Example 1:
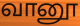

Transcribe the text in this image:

வானூ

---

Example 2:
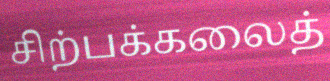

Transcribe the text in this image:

சிற்பக்கலைத்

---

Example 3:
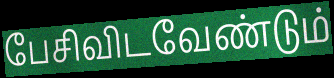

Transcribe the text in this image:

பேசிவிடவேண்டும்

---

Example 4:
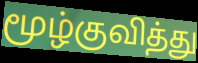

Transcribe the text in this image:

மூழ்குவித்து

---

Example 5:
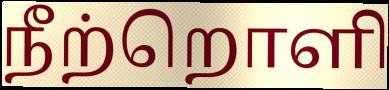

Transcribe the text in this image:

நீற்றொளி